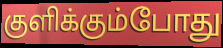
குளிக்கும்போது